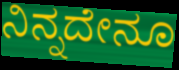
ನಿನ್ನದೇನೂ